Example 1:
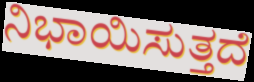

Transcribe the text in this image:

ನಿಭಾಯಿಸುತ್ತದೆ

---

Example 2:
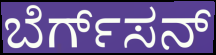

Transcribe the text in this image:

ಬೆರ್ಗ್‌ಸನ್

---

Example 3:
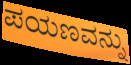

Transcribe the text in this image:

ಪಯಣವನ್ನು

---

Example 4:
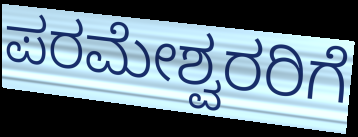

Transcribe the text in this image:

ಪರಮೇಶ್ವರರಿಗೆ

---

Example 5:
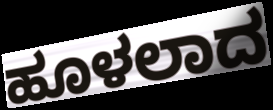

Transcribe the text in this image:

ಹೂಳಲಾದ